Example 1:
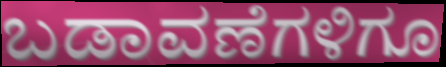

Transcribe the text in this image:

ಬಡಾವಣೆಗಳಿಗೂ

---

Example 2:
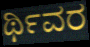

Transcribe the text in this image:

ರ್ಥಿವರ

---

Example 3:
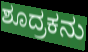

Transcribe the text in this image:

ಶೂದ್ರಕನು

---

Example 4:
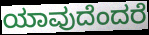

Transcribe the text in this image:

ಯಾವುದೆಂದರೆ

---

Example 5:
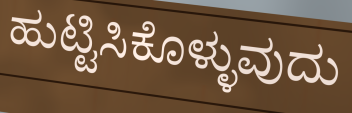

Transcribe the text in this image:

ಹುಟ್ಟಿಸಿಕೊಳ್ಳುವುದು